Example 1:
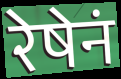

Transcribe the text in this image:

रेषेनं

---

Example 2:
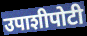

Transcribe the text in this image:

उपाशीपोटी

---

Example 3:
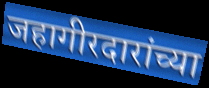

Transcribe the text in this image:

जहागीरदारांच्या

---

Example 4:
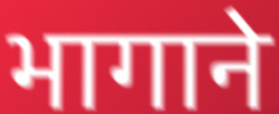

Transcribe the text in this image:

भागाने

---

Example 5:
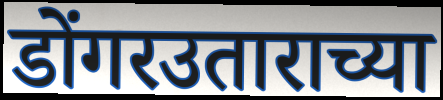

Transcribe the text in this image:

डोंगरउताराच्या